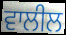
ਵਾਲੀਲ